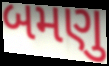
બમણુ